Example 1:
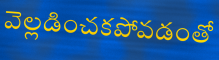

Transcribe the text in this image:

వెల్లడించకపోవడంతో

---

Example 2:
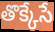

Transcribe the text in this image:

తొక్కేసే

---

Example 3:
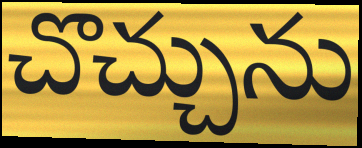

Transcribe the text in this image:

చొచ్చును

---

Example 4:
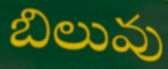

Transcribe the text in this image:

బిలువు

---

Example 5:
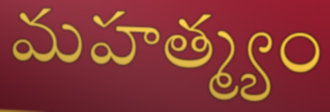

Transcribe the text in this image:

మహత్మ్యం